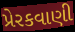
પ્રેરકવાણી